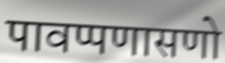
पावप्पणासणो